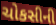
ચોકસીની